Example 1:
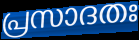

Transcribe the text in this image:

പ്രസാദതഃ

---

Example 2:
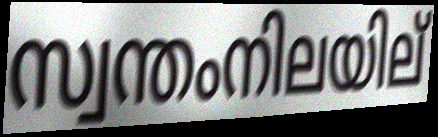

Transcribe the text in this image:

സ്വന്തംനിലയില്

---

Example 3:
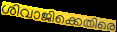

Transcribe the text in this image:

ശിവാജിക്കെതിരെ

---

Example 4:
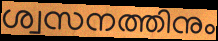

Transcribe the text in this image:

ശ്വസനത്തിനും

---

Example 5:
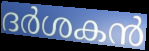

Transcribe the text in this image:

ദർശകൻ